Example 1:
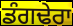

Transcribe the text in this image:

ਡੰਗਢੇਰਾ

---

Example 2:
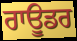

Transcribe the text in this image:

ਰਾਊਡਰ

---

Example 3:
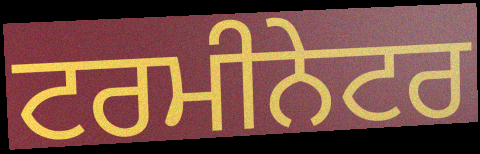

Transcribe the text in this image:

ਟਰਮੀਨੇਟਰ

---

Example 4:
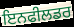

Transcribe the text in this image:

ਇਨਫੀਲਡਰ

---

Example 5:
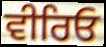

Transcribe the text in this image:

ਵੀਰਿਓ